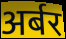
अर्बर